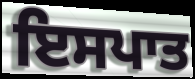
ਇਸਪਾਤ